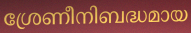
ശ്രേണീനിബദ്ധമായ